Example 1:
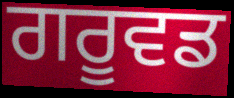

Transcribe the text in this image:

ਗਰੂਵਡ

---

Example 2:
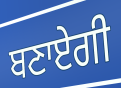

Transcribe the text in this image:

ਬਣਾਏਗੀ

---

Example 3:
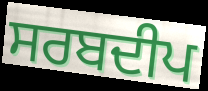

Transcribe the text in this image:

ਸਰਬਦੀਪ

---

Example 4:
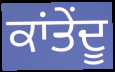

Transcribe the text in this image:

ਕਾਂਤੇਂਦੂ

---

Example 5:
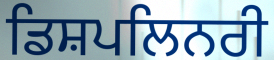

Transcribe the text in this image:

ਡਿਸ਼ਪਲਿਨਰੀ